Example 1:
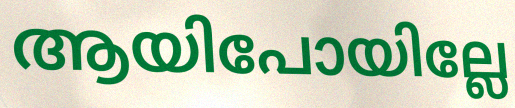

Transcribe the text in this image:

ആയിപോയില്ലേ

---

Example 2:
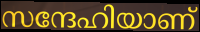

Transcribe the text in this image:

സന്ദേഹിയാണ്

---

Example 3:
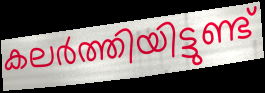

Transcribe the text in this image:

കലർത്തിയിട്ടുണ്ട്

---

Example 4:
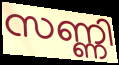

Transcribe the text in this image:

സണ്ണി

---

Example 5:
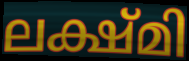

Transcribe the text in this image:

ലക്ഷ്മി